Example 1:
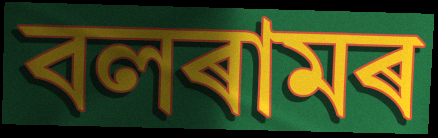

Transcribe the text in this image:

বলৰামৰ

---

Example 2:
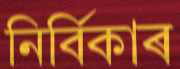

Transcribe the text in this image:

নিৰ্বিকাৰ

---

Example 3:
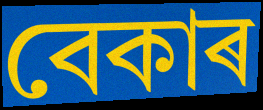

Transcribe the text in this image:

বেকাৰ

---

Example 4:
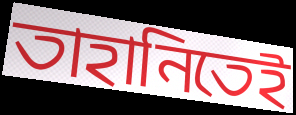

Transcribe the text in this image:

তাহানিতেই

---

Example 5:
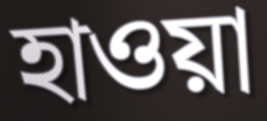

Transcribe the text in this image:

হাওয়া